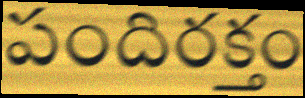
పందిరక్తం